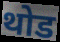
थोड